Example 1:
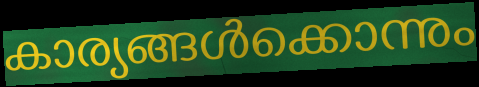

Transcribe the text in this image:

കാര്യങ്ങൾക്കൊന്നും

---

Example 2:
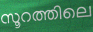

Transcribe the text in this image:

സൂറത്തിലെ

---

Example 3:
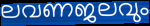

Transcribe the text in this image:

ലവണജലവും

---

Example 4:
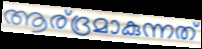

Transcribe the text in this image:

ആര്ദ്രമാകുന്നത്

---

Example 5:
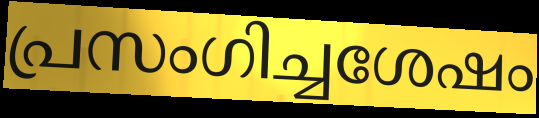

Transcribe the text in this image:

പ്രസംഗിച്ചശേഷം